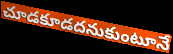
చూడకూడదనుకుంటూనే